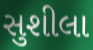
સુશીલા